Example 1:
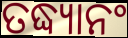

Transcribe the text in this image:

ତଦ୍ଧ୍ଯାନଂ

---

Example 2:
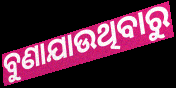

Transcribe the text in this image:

ବୁଣାଯାଉଥିବାରୁ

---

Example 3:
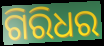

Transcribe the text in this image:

ଗିରିଧର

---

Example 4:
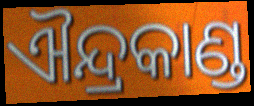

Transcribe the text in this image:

ଐନ୍ଦ୍ରକାଣ୍ଡ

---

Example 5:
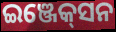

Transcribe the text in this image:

ଇଞ୍ଜେକ୍‌ସନ